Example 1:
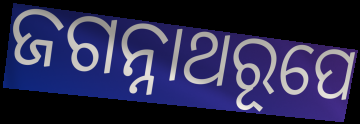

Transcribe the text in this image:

ଜଗନ୍ନାଥରୂପେ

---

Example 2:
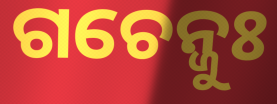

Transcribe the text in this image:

ଗଚେନ୍ଜୁଃ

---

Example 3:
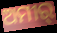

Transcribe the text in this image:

ଅମୀର୍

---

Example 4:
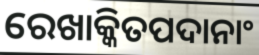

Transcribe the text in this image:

ରେଖାକ୍କିତପଦାନାଂ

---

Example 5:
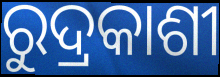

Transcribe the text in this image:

ରୁଦ୍ରକାଶୀ